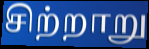
சிற்றாறு